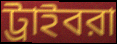
ট্রাইবরা